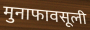
मुनाफावसूली